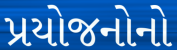
પ્રયોજનોનો